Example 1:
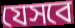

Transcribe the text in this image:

যেসবে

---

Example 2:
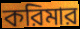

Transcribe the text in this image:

করিমার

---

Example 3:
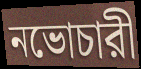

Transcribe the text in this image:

নভোচারী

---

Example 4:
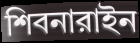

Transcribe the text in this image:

শিবনারাইন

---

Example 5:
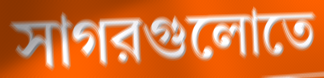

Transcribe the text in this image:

সাগরগুলোতে